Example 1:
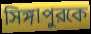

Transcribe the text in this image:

সিঙ্গাপুরকে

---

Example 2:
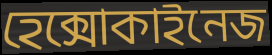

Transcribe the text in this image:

হেক্সোকাইনেজ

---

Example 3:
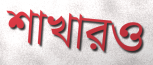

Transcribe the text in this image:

শাখারও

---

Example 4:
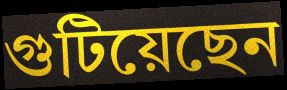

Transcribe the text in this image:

গুটিয়েছেন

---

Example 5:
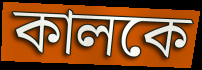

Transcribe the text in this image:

কালকে